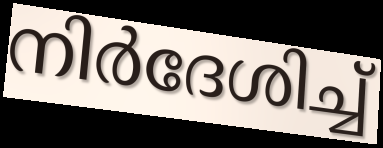
നിർദേശിച്ച്